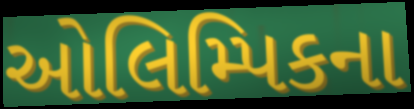
ઓલિમ્પિકના